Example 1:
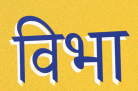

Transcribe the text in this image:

विभा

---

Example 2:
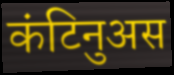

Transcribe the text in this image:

कंटिनुअस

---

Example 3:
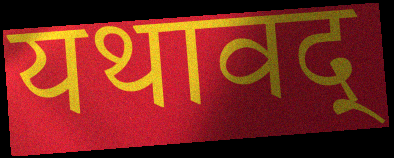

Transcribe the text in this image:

यथावद्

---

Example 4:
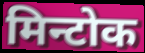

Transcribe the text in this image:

मिन्टोक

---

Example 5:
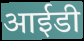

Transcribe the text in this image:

आईडी